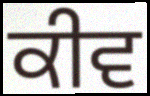
ਕੀਵ